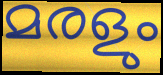
മരളും